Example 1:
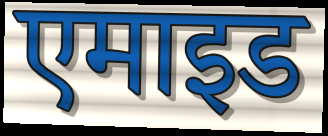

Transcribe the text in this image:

एमाइड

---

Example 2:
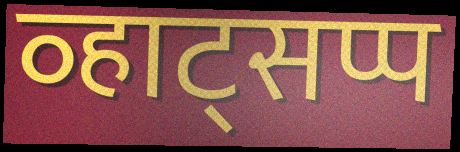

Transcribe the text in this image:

व्हाट्सप्प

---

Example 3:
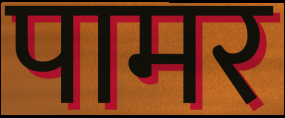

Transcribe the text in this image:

पामर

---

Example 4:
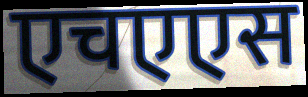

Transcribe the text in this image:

एचएएस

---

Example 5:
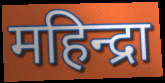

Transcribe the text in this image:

महिन्द्रा